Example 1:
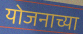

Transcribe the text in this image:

योजनाच्या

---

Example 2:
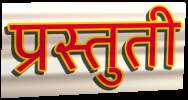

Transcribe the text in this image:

प्रस्तुती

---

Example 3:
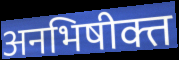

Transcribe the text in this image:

अनभिषीक्त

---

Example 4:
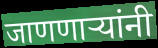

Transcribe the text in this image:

जाणणाऱ्यांनी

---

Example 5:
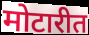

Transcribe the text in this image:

मोटारीत